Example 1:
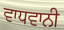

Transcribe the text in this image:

ਵਾਧਵਾਨੀ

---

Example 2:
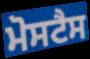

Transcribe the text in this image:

ਮੋਸਟੈਸ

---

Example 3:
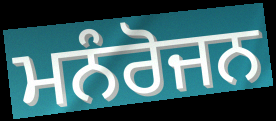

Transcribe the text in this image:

ਮਨੰਰੋਜਨ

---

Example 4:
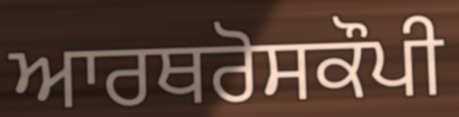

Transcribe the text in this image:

ਆਰਥਰੋਸਕੌਪੀ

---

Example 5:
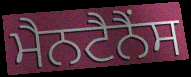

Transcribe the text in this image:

ਮੈਨਟੈਨੈਂਸ